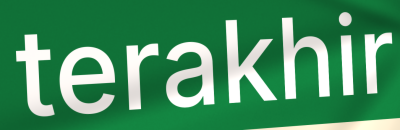
terakhir